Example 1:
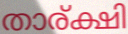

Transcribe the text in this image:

താര്ക്ഷി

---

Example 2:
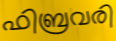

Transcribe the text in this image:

ഫിബ്രവരി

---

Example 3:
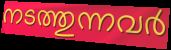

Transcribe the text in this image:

നടത്തുന്നവർ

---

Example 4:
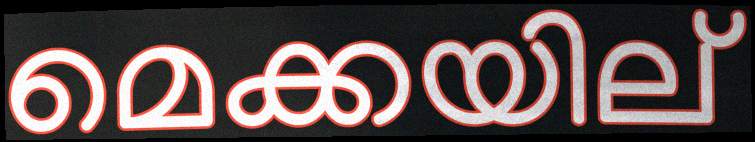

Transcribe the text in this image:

മെക്കയില്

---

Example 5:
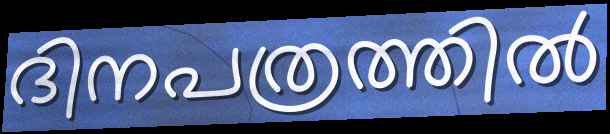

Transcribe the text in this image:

ദിനപത്രത്തിൽ